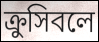
ক্রুসিবলে